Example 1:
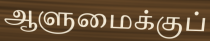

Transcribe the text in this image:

ஆளுமைக்குப்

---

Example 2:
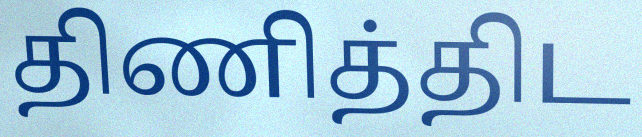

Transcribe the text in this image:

திணித்திட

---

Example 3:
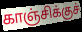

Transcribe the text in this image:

காஞ்சிக்குச்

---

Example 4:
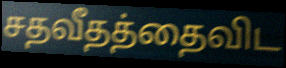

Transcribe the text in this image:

சதவீதத்தைவிட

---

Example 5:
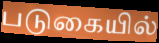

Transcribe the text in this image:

படுகையில்